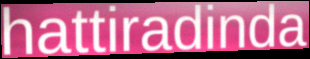
hattiradinda